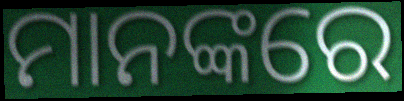
ମାନଙ୍କରେ